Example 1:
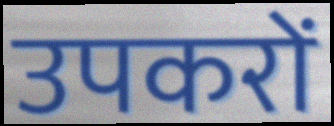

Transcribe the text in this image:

उपकरों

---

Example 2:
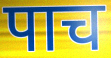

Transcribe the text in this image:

पाच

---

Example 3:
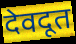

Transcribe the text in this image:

देवदूत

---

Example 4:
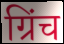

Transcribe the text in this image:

ग्रिंच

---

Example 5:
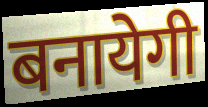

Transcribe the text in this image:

बनायेगी